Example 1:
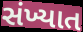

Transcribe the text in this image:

સંખ્યાત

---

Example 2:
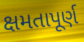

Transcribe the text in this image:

ક્ષમતાપૂર્ણ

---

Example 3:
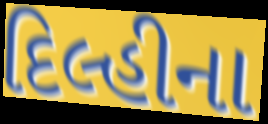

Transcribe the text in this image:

દિલ્હીના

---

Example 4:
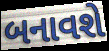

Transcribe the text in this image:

બનાવશે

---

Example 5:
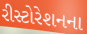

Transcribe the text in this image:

રીસ્ટોરેશનના